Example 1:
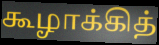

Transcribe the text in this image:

கூழாக்கித்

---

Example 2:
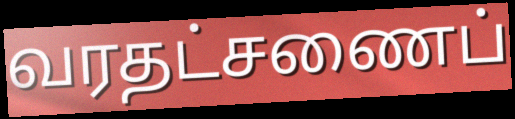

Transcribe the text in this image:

வரதட்சணைப்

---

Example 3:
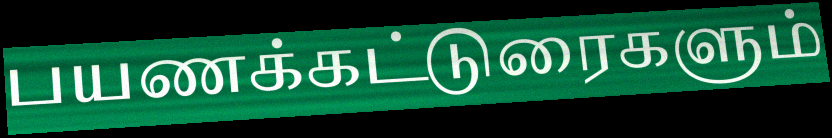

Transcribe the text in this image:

பயணக்கட்டுரைகளும்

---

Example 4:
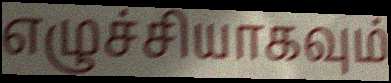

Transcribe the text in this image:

எழுச்சியாகவும்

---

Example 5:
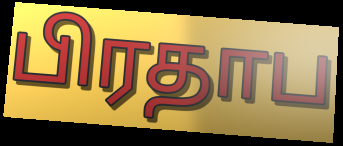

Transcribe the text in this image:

பிரதாப